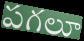
పగలూ